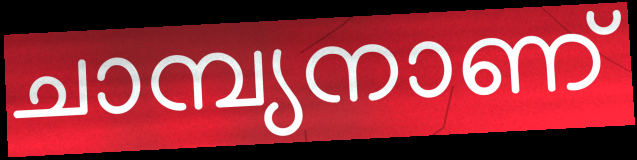
ചാമ്പ്യനാണ്